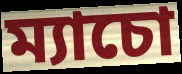
ম্যাচো